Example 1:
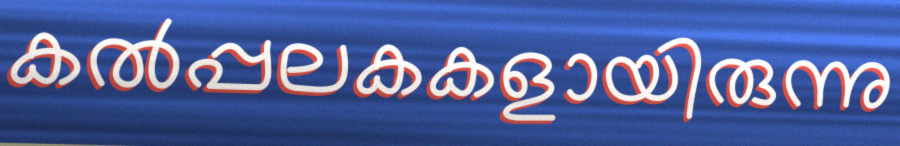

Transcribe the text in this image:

കൽപ്പലകകളായിരുന്നു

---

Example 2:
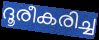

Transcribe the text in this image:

ദൂരീകരിച്ച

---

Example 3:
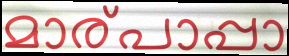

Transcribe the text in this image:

മാര്പാപ്പാ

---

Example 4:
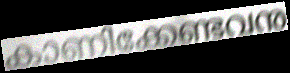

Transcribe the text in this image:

കാണിക്കേണ്ടവനു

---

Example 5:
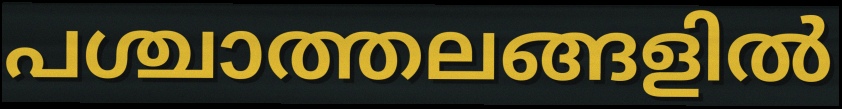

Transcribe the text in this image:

പശ്ചാത്തലങ്ങളിൽ